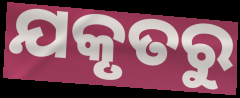
ଯକୃତରୁ